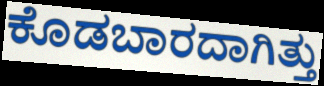
ಕೊಡಬಾರದಾಗಿತ್ತು